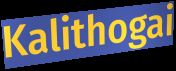
Kalithogai